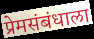
प्रेमसंबंधाला